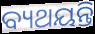
ବ୍ୟଥୟନ୍ତି